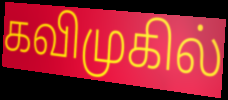
கவிமுகில்